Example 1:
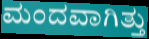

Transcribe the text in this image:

ಮಂದವಾಗಿತ್ತು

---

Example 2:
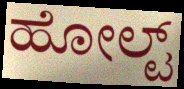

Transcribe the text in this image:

ಹೋಲ್ಟ್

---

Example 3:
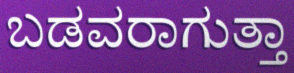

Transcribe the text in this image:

ಬಡವರಾಗುತ್ತಾ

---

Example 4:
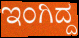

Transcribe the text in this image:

ಇಂಗಿದ್ದ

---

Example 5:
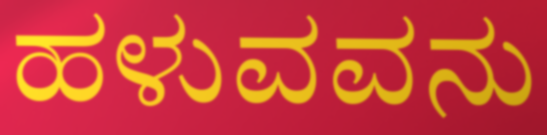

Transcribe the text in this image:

ಹಳುವವನು